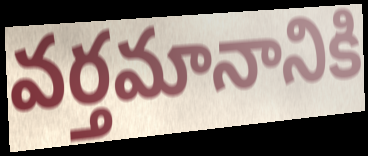
వర్తమానానికి